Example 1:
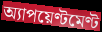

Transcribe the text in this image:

অ্যাপয়েণ্টমেণ্ট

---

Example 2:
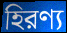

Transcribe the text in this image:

হিরণ্য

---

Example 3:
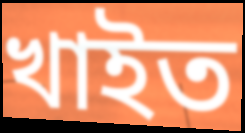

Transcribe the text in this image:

খাইত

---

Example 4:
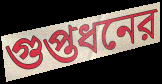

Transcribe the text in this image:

গুপ্তধনের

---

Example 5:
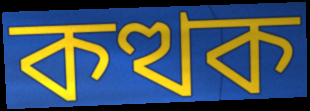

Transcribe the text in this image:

কত্থক